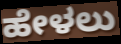
ಹೇಳಲು